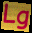
Lg